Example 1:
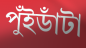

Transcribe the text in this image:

পুঁইডাঁটা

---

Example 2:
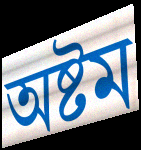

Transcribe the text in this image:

অষ্টম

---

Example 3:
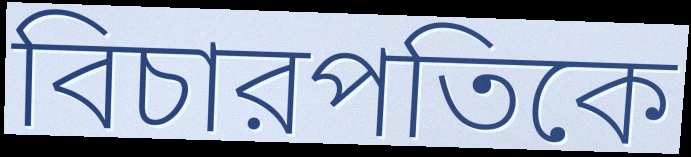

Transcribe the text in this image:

বিচারপতিকে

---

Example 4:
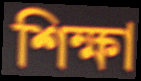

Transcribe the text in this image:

শিক্ষা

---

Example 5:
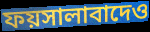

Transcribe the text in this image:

ফয়সালাবাদেও